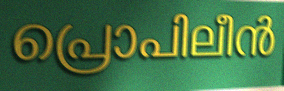
പ്രൊപിലീൻ